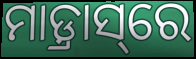
ମାଡ଼୍ରାସ୍‌ରେ